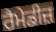
ਰੈਮੇਡੀਜ਼